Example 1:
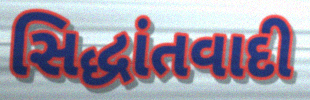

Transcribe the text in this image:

સિદ્ધાંતવાદી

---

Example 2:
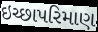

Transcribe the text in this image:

ઇચ્છાપરિમાણ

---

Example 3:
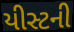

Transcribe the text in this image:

યીસ્ટની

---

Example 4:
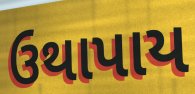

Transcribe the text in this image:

ઉથાપાય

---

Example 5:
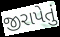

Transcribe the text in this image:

જીરાપેતું